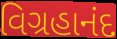
વિગ્રહાનંદ